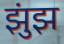
झुंझ